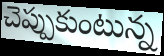
చెప్పుకుంటున్న